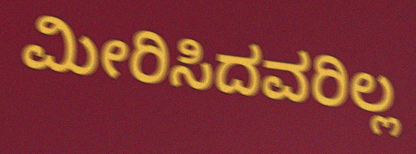
ಮೀರಿಸಿದವರಿಲ್ಲ